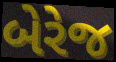
બેરેજ